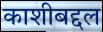
काशीबद्दल